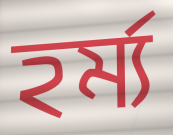
হর্ম্য